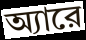
অ্যারে